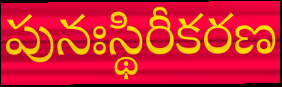
పునఃస్థిరీకరణ